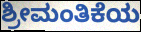
ಶ್ರೀಮಂತಿಕೆಯ